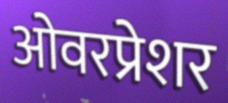
ओवरप्रेशर